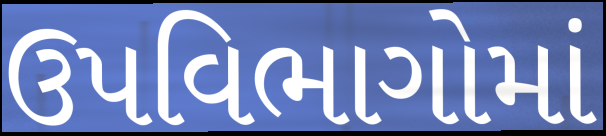
ઉપવિભાગોમાં